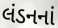
લંડનનાં